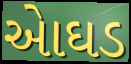
એાઘડ